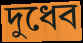
দুধেব